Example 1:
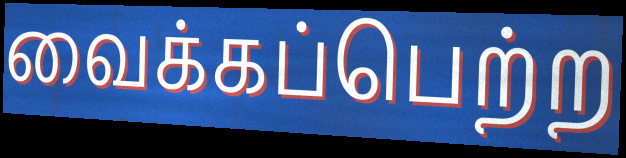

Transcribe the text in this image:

வைக்கப்பெற்ற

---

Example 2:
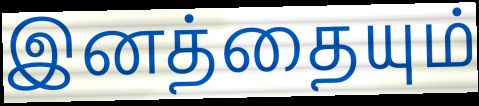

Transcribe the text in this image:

இனத்தையும்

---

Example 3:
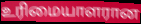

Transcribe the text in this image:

உரிமையாளரான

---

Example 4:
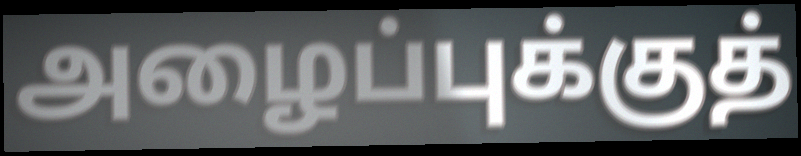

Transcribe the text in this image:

அழைப்புக்குத்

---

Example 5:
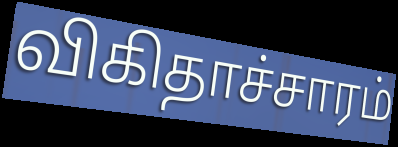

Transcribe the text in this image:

விகிதாச்சாரம்